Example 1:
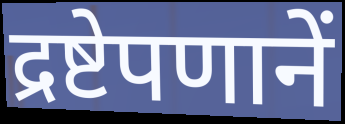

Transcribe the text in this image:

द्रष्टेपणानें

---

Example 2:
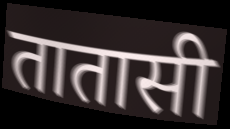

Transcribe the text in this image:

तातासी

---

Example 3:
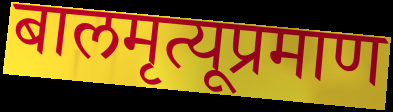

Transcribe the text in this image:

बालमृत्यूप्रमाण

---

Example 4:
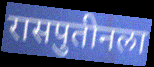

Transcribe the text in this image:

रासपुतीनला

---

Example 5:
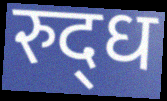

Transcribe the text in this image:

रुद्ध